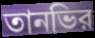
তানভির